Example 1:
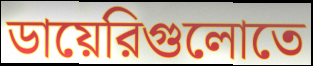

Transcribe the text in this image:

ডায়েরিগুলোতে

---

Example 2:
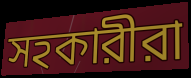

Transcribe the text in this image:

সহকারীরা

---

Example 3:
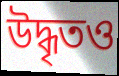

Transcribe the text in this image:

উদ্ধৃতও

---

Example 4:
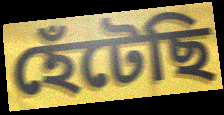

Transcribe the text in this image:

হেঁটেছি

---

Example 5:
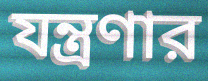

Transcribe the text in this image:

যন্ত্রণার